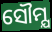
ସୌମ୍ଯ